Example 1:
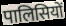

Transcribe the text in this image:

पालिसियों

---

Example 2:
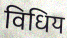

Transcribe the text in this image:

विधिय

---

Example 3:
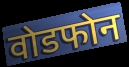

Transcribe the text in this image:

वोडफोन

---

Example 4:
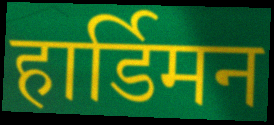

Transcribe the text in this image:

हार्डिमन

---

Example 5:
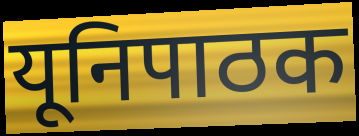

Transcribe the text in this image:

यूनिपाठक